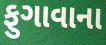
ફુગાવાના